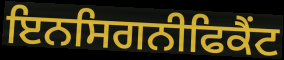
ਇਨਸਿਗਨੀਫਿਕੈਂਟ